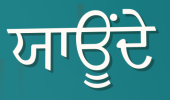
ਯਾਊਂਦੇ